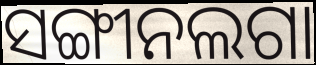
ସଙ୍ଗୀନଲଗା